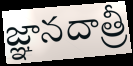
జ్ఞానదాత్రీ